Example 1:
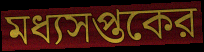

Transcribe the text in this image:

মধ্যসপ্তকের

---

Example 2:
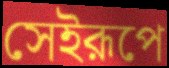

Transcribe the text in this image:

সেইরূপে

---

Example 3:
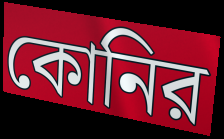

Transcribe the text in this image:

কোনির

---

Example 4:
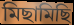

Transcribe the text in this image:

মিছামিছি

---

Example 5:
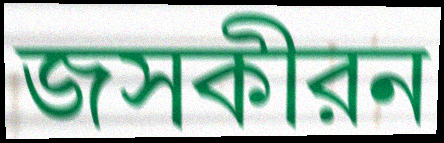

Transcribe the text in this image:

জসকীরন